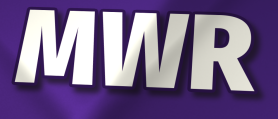
MWR